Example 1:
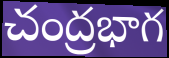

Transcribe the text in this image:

చంద్రభాగ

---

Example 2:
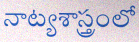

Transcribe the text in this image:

నాట్యశాస్త్రంలో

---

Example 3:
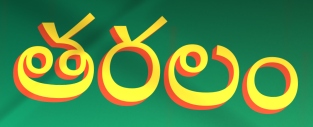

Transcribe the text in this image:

తరలం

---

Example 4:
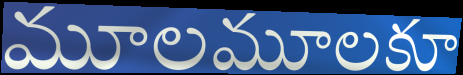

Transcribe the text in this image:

మూలమూలకూ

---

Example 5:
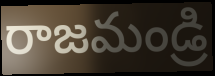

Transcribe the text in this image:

రాజమండ్రి